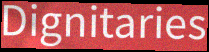
Dignitaries